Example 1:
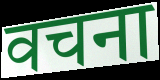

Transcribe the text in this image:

वचना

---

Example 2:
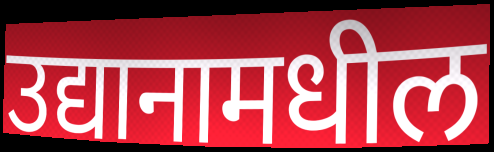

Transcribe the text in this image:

उद्यानामधील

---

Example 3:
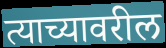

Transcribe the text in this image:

त्याच्यावरील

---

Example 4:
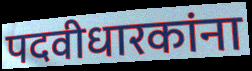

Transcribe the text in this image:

पदवीधारकांना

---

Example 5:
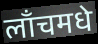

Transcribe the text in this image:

लाँचमधे